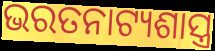
ଭରତନାଟ୍ୟଶାସ୍ତ୍ର